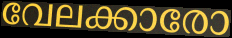
വേലക്കാരോ